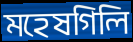
মহেষগিলি